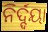
ନିର୍ଦ୍ଦୟା